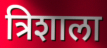
त्रिशाला